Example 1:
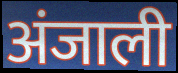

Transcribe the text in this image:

अंजाली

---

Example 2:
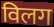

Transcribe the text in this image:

विलग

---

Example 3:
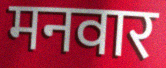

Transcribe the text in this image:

मनवार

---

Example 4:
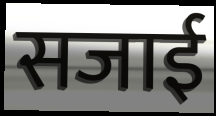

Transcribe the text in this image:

सजाई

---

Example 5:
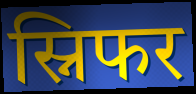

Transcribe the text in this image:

स्निफर